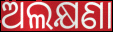
ଅଲକ୍ଷଣା